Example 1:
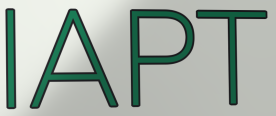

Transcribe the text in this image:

IAPT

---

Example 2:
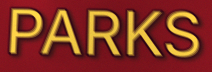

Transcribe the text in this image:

PARKS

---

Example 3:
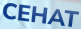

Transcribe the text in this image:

CEHAT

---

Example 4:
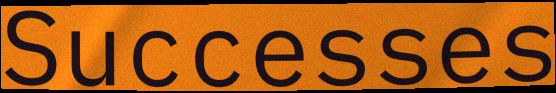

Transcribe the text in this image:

Successes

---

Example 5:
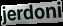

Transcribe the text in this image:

jerdoni